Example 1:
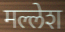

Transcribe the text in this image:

मल्लेश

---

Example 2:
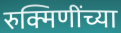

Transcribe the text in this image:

रुक्मिणींच्या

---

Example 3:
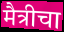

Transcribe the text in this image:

मैत्रीचा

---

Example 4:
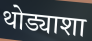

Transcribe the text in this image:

थोड्याशा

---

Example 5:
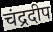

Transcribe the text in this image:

चंद्रदीप